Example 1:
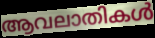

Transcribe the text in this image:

ആവലാതികൾ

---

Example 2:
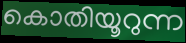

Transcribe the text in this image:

കൊതിയൂറുന്ന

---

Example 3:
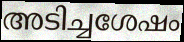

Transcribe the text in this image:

അടിച്ചശേഷം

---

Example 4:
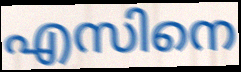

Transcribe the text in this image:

എസിനെ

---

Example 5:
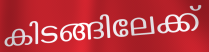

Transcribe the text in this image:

കിടങ്ങിലേക്ക്